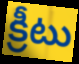
క్రీటు